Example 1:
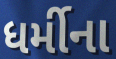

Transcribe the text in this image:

ધર્મીના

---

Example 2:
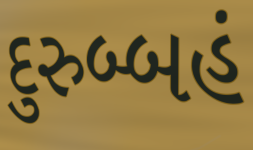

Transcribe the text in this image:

દુરુબ્બહં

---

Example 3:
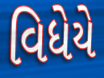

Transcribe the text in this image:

વિધેયે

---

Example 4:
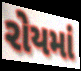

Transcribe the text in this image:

રોયમાં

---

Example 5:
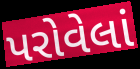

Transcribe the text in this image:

પરોવેલાં